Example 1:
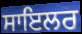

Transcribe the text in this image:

ਸਾਇਲਰ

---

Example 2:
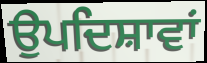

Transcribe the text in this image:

ਉਪਦਿਸ਼ਾਵਾਂ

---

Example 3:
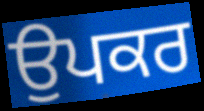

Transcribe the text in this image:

ਉਪਕਰ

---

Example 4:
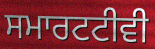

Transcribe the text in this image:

ਸਮਾਰਟਟੀਵੀ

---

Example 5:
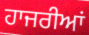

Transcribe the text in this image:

ਹਾਜਰੀਆਂ